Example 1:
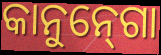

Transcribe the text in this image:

କାନୁନ୍‍ଗୋ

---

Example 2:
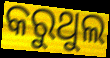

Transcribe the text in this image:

କରୁଥୁଲ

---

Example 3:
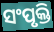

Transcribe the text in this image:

ସଂପୃକ୍ତି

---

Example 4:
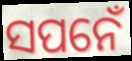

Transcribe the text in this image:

ସପନେଁ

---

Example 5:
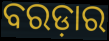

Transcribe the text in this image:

ବରଡ଼ାର